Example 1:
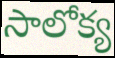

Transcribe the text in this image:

సాలోక్య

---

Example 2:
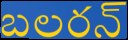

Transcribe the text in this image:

బలరన్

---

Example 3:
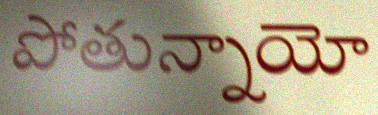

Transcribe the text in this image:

పోతున్నాయో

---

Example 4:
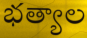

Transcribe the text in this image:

భత్యాల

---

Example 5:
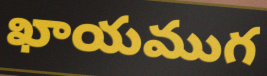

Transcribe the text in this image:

ఖాయముగ